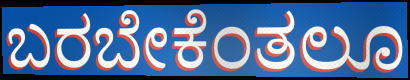
ಬರಬೇಕೆಂತಲೂ